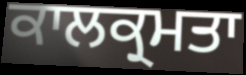
ਕਾਲਕ੍ਰਮਤਾ